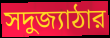
সদুজ্যাঠার